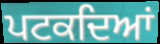
ਪਟਕਦਿਆਂ